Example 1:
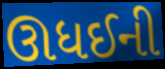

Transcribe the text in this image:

ઊધઈની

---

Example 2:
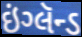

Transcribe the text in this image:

ઇંગ્લૅન્ડ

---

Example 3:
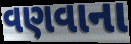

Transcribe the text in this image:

વણવાના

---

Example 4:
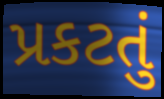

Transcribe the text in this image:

પ્રકટતું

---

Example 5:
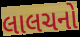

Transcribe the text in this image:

લાલચનો